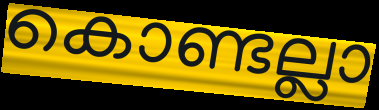
കൊണ്ടല്ലാ